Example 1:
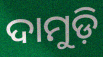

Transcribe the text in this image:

ଦାମୁଡ଼ି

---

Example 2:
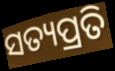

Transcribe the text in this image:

ସତ୍ୟପ୍ରତି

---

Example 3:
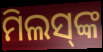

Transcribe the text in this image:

ମିଲସ୍‍ଙ୍କ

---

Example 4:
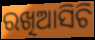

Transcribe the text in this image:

ରଖିଆସିଚି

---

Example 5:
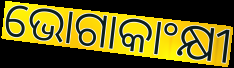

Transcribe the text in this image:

ଭୋଗାକାଂକ୍ଷୀ